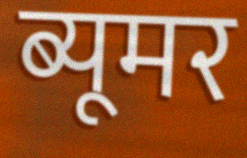
ब्यूमर